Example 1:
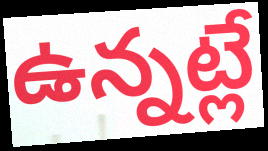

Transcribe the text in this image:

ఉన్నట్లే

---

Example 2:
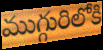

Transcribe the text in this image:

ముగ్గురిలోకి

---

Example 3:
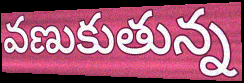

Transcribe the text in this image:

వణుకుతున్న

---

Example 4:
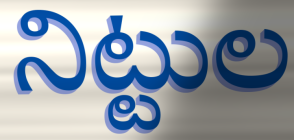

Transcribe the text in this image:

నిట్టుల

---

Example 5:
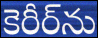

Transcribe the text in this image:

కెరీర్‌ను